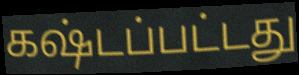
கஷ்டப்பட்டது